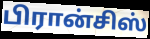
பிரான்சிஸ்